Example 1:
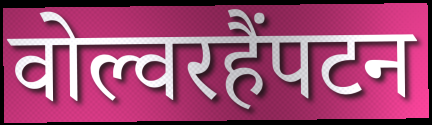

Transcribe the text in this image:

वोल्वरहैंपटन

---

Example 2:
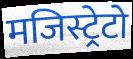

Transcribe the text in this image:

मजिस्ट्रेटो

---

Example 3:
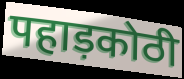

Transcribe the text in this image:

पहाड़कोठी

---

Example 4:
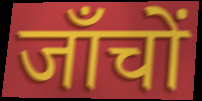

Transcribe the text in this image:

जाँचों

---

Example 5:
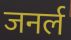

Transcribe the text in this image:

जनर्ल